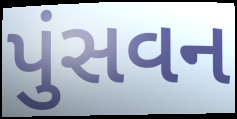
પુંસવન